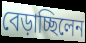
বেড়াচ্ছিলেন